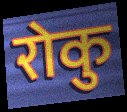
रोकु